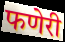
फणेरी